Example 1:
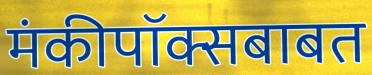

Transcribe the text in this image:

मंकीपॉक्सबाबत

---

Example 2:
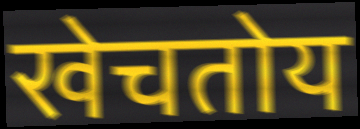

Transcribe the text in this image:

खेचतोय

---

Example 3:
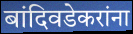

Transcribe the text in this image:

बांदिवडेकरांना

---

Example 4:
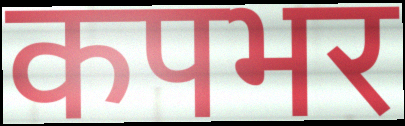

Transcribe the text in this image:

कपभर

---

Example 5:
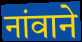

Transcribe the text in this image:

नांवाने